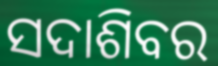
ସଦାଶିବର